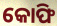
କୋଫି